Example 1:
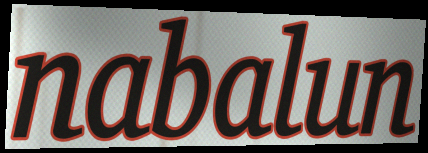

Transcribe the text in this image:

nabalun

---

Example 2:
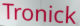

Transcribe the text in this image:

Tronick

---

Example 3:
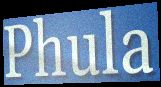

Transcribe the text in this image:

Phula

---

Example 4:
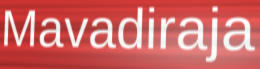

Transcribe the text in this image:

Mavadiraja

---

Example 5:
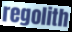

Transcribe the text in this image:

regolith